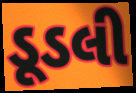
ડૂડલી